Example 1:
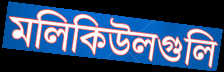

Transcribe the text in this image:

মলিকিউলগুলি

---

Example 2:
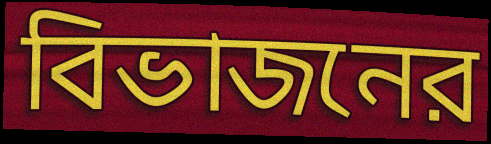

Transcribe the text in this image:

বিভাজনের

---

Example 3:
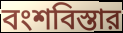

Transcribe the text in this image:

বংশবিস্তার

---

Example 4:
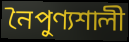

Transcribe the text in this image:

নৈপুণ্যশালী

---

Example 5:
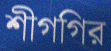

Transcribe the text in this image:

শীগগির